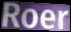
Roer